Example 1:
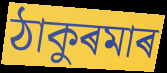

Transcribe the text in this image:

ঠাকুৰমাৰ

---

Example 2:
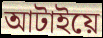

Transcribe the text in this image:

আটাইয়ে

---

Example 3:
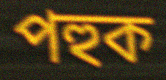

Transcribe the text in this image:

পহুক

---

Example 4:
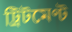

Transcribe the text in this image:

ট্ৰিটমেণ্ট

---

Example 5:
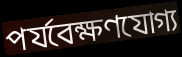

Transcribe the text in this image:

পৰ্যবেক্ষণযোগ্য